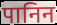
पानिन